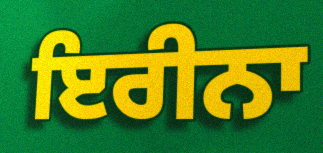
ਇਰੀਨਾ